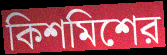
কিশমিশের